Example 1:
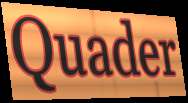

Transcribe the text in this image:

Quader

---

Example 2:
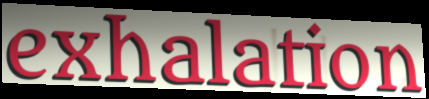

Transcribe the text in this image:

exhalation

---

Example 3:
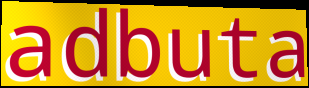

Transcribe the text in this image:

adbuta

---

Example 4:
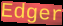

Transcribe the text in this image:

Edger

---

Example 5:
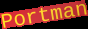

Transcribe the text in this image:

Portman